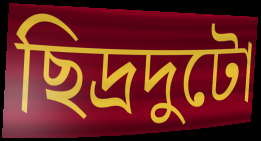
ছিদ্রদুটো